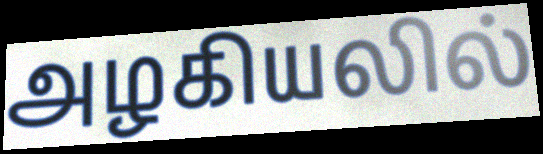
அழகியலில்